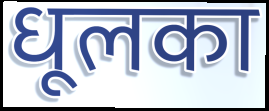
धूलका